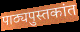
पाठ्यपुस्तकांत